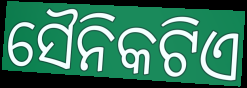
ସୈନିକଟିଏ